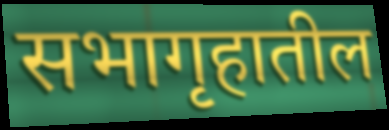
सभागृहातील